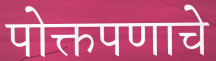
पोक्तपणाचे